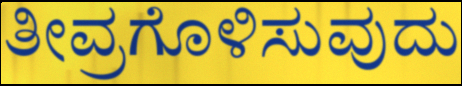
ತೀವ್ರಗೊಳಿಸುವುದು